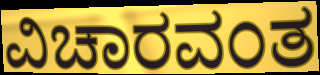
ವಿಚಾರವಂತ